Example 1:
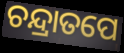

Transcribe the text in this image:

ଚନ୍ଦ୍ରାତପେ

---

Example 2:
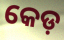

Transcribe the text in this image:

କେଡ଼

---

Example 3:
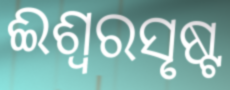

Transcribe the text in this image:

ଈଶ୍ୱରସୃଷ୍ଟ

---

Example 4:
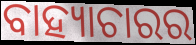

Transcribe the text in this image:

ବାହ୍ୟାଚାରର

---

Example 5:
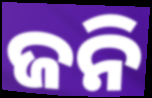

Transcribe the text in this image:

ଜନି